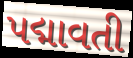
પદ્માવતી